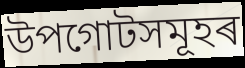
উপগোটসমূহৰ